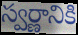
స్వర్ణానికి